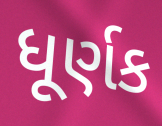
ધૂર્ણક